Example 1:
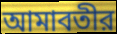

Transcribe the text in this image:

আমাবতীর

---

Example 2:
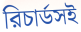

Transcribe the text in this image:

রিচার্ডসই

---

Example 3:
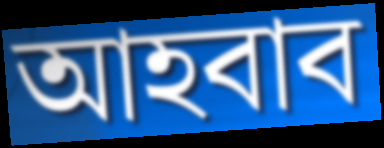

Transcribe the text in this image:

আহবাব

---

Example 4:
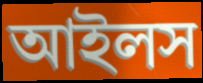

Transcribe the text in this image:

আইলস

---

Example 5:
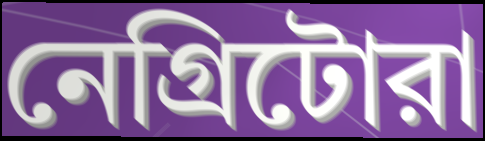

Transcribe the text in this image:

নেগ্রিটোরা